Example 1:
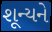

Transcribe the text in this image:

શૂન્યને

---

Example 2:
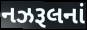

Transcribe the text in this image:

નઝરૂલનાં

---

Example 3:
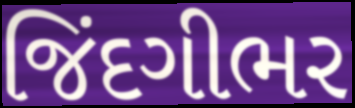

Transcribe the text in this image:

જિંદગીભર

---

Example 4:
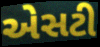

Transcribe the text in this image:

એસટી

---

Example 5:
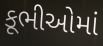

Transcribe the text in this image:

કૂભીઓમાં